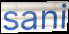
sani